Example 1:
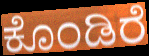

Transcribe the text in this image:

ಕೊಂಡಿರೆ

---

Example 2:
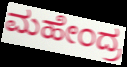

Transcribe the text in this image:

ಮಹೇಂದ್ರ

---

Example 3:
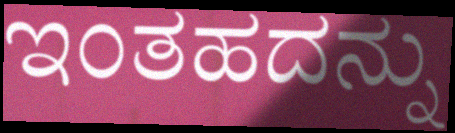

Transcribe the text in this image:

ಇಂತಹದನ್ನು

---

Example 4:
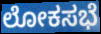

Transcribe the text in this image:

ಲೋಕಸಭೆ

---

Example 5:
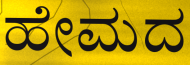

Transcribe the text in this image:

ಹೇಮದ